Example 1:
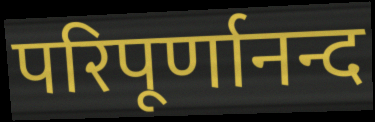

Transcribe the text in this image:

परिपूर्णानन्द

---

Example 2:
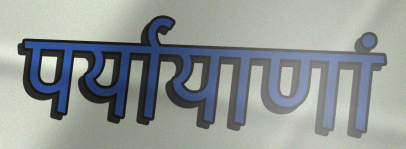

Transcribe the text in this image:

पर्यायाणां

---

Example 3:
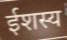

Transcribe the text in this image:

ईशस्य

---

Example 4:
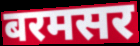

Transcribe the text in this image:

बरमसर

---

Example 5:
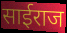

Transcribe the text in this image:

साईराज